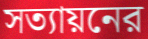
সত্যায়নের